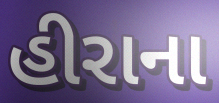
હીરાના